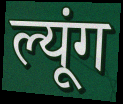
ल्यूंग